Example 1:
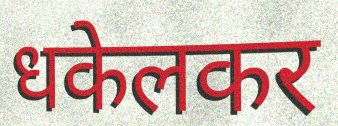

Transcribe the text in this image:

धकेलकर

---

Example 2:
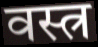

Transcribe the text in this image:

वस्‍त्र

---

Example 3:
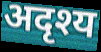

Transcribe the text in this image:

अदृश्य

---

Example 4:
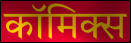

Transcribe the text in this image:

कॉमिक्स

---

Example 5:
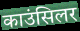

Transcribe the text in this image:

काउंसिलर